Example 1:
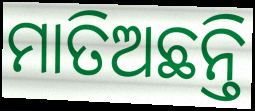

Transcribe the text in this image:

ମାତିଅଛନ୍ତି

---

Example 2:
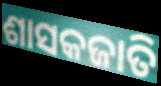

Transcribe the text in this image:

ଶାସକଜାତି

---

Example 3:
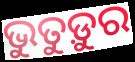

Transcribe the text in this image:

ଭୁତୁଡ଼ୁର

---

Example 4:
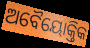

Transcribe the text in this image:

ଅବୈୟୋକ୍ତିକ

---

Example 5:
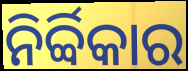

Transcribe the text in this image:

ନିର୍ବ୍ବିକାର